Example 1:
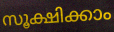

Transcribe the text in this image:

സൂക്ഷിക്കാം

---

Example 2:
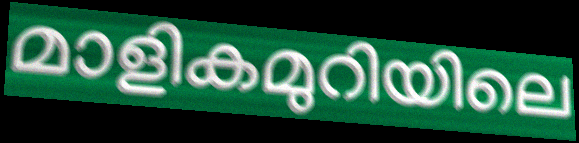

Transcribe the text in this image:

മാളികമുറിയിലെ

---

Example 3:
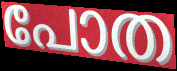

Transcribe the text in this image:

പോത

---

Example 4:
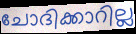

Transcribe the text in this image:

ചോദിക്കാറില്ല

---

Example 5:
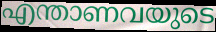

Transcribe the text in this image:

എന്താണവയുടെ